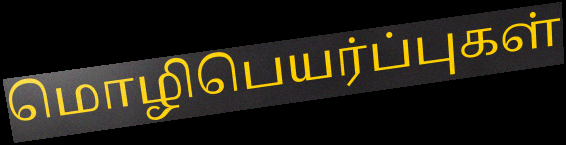
மொழிபெயர்ப்புகள்